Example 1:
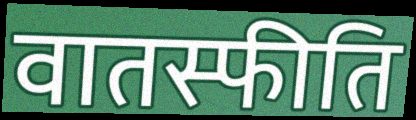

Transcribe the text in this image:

वातस्फीति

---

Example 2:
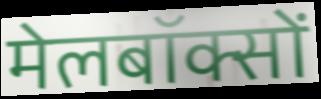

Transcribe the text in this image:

मेलबॉक्सों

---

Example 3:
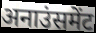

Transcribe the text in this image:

अनाउंसमेंट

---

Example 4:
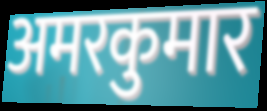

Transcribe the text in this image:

अमरकुमार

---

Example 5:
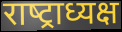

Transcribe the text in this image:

राष्ट्राध्यक्ष